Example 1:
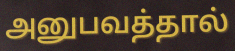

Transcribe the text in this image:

அனுபவத்தால்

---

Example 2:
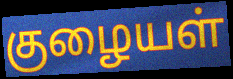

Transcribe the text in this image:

குழையள்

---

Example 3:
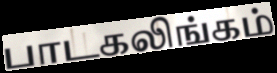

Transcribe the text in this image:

பாடகலிங்கம்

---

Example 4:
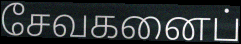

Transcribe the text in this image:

சேவகனைப்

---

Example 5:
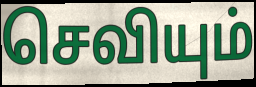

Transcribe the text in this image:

செவியும்